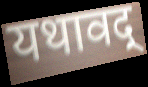
यथावद्